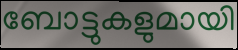
ബോട്ടുകളുമായി